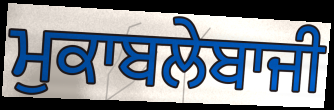
ਮੁਕਾਬਲੇਬਾਜੀ